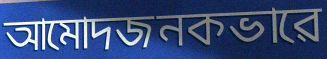
আমোদজনকভাৱে